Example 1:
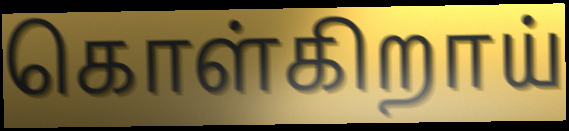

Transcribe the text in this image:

கொள்கிறாய்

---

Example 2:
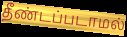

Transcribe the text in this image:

தீண்டப்படாமல்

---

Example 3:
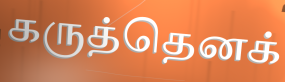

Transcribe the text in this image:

கருத்தெனக்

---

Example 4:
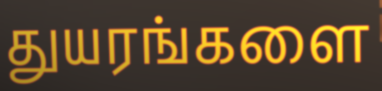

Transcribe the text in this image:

துயரங்களை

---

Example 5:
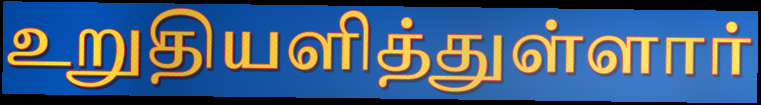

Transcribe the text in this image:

உறுதியளித்துள்ளார்